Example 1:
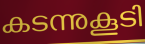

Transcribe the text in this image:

കടന്നുകൂടി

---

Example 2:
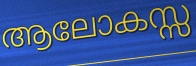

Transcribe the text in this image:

ആലോകസ്സ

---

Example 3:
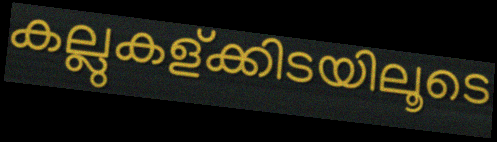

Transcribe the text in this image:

കല്ലുകള്ക്കിടയിലൂടെ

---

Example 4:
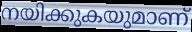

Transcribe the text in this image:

നയിക്കുകയുമാണ്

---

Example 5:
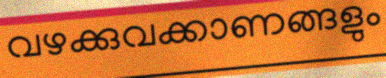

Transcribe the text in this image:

വഴക്കുവക്കാണങ്ങളും